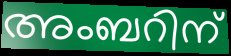
അംബറിന്